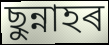
ছুন্নাহৰ